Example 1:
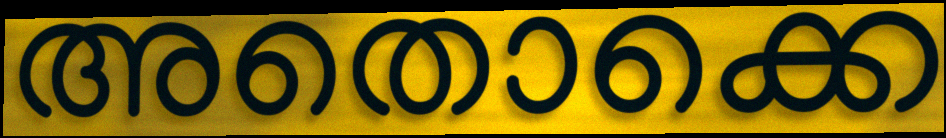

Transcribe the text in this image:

അതൊക്കെ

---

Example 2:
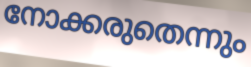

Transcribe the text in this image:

നോക്കരുതെന്നും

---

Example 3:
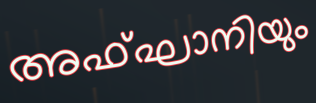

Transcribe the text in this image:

അഫ്ഘാനിയും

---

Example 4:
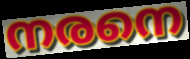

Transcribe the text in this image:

നരനെ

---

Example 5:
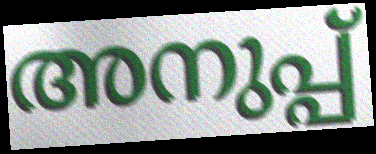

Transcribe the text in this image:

അനുപ്പ്